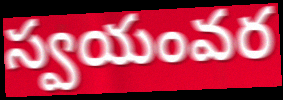
స్వయంవర